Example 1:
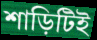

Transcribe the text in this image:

শাড়িটিই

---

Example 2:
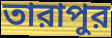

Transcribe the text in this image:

তারাপুর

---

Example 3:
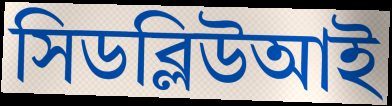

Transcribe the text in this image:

সিডব্লিউআই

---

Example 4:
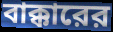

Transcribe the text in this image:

বাক্কারের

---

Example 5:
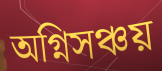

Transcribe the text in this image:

অগ্নিসঞ্চয়